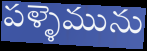
పళ్ళెమును